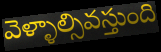
వెళ్ళాల్సివస్తుంది